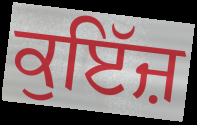
ਕੁਇੱਜ਼